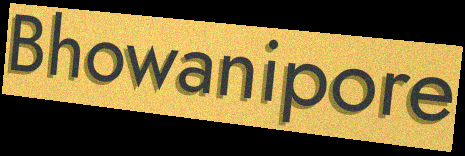
Bhowanipore